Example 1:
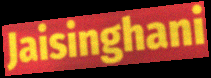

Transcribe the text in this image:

Jaisinghani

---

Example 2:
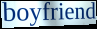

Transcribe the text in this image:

boyfriend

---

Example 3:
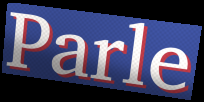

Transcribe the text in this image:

Parle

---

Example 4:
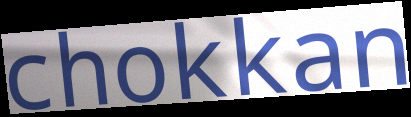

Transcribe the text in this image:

chokkan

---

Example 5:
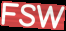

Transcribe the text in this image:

FSW